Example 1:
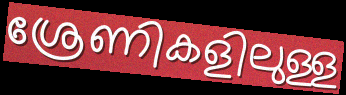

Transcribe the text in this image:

ശ്രേണികളിലുള്ള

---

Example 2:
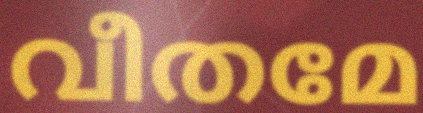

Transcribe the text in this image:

വീതമേ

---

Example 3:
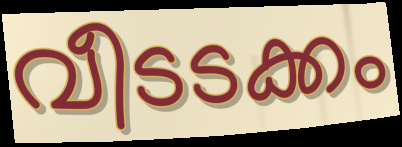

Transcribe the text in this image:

വീടടക്കം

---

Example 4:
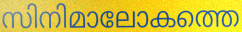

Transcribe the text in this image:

സിനിമാലോകത്തെ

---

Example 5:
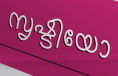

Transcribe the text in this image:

സൃഷ്ടിയോ